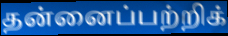
தன்னைப்பற்றிக்